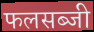
फलसब्जी